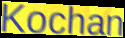
Kochan